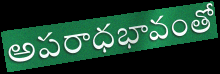
అపరాధభావంతో